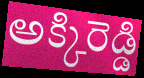
అక్కిరెడ్డి